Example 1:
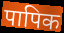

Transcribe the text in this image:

पापिक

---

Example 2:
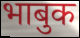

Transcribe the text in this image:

भाबुक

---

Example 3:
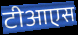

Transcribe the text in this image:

टीआएस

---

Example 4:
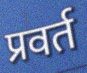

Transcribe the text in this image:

प्रवर्त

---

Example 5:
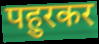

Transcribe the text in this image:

पहुरकर